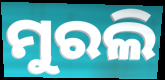
ମୁରଲି